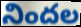
నిందల